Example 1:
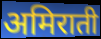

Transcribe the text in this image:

अमिराती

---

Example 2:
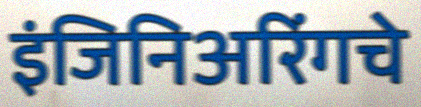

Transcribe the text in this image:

इंजिनिअरिंगचे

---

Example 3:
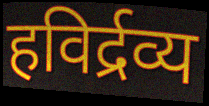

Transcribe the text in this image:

हविर्द्रव्य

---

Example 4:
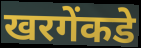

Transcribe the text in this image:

खरगेंकडे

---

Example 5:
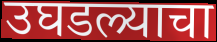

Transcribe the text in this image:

उघडल्याचा